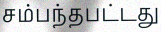
சம்பந்தபட்டது